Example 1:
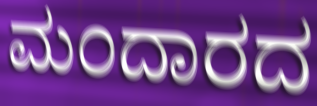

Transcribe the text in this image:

ಮಂದಾರದ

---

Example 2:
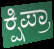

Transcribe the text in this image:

ಕ್ಷಿಪ್ರಾ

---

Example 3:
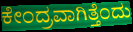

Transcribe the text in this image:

ಕೇಂದ್ರವಾಗಿತ್ತೆಂದು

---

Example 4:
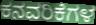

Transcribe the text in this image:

ಕನವರಿಕೆಗಳ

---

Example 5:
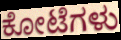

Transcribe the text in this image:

ಕೋಟೆಗಳು